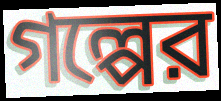
গল্পের